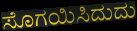
ಸೊಗಯಿಸಿದುದು